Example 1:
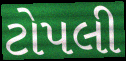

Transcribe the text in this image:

ટોપલી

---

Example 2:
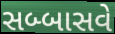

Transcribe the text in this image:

સબ્બાસવે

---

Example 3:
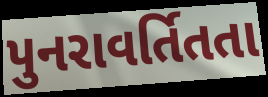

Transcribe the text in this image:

પુનરાવર્તિતતા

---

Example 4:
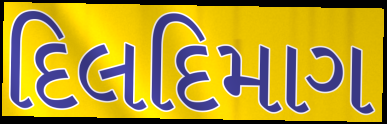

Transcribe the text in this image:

દિલદિમાગ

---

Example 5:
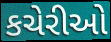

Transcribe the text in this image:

કચેરીઓ